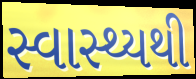
સ્વાસ્થ્યથી